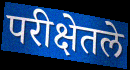
परीक्षेतले